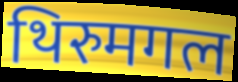
थिरुमगल